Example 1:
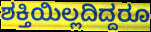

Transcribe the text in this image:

ಶಕ್ತಿಯಿಲ್ಲದಿದ್ದರೂ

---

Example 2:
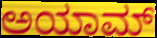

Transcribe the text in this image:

ಅಯಾಮ್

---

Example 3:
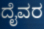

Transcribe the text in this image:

ದೈವರ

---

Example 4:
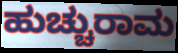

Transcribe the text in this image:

ಹುಚ್ಚುರಾಮ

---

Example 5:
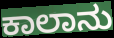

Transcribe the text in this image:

ಕಾಲಾನು